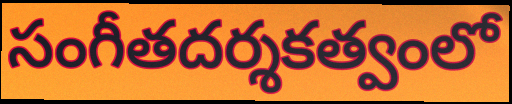
సంగీతదర్శకత్వంలో